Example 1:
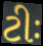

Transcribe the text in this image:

ટીઃ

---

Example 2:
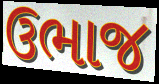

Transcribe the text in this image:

ઉભાજ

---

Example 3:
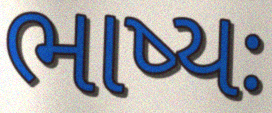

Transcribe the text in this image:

ભાષ્યઃ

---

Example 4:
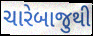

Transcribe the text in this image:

ચારેબાજુથી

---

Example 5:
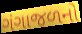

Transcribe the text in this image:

ગંગાજળનો